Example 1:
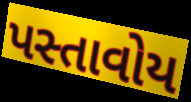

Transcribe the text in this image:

પસ્તાવોય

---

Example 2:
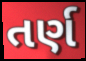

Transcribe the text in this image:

તર્ણ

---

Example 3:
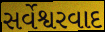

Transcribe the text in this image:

સર્વેશ્વરવાદ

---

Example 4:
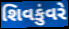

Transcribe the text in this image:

શિવકુંવરે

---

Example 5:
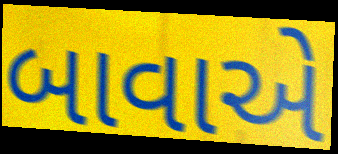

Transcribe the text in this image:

બાવાએ